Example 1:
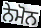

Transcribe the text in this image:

ਨੇਮੋਨ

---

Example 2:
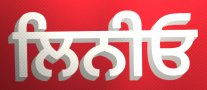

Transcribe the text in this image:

ਲਿਨੀਓ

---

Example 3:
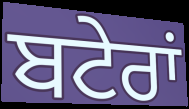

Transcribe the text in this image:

ਬਟੇਰਾਂ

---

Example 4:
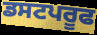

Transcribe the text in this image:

ਡਸਟਪਰੂਫ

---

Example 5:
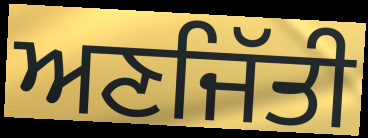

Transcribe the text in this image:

ਅਣਜਿੱਤੀ